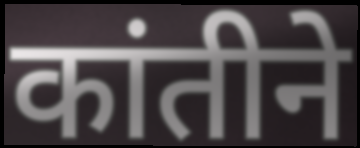
कांतीने